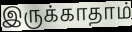
இருக்காதாம்